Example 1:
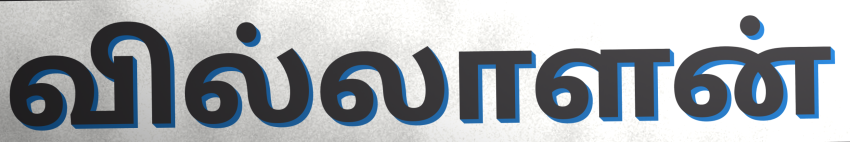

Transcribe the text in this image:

வில்லாளன்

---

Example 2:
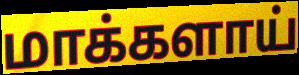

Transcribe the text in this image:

மாக்களாய்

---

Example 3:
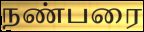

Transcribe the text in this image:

நண்பரை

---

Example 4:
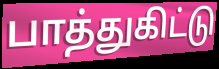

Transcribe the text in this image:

பாத்துகிட்டு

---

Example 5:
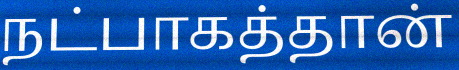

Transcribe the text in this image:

நட்பாகத்தான்